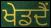
ਖੇਡਦੈਂ